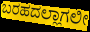
ಬರಹದಲ್ಲಾಗಲೀ